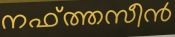
നഫ്ത്തസീൻ